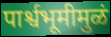
पार्श्वभूमीमुळं